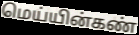
மெய்யின்கண்